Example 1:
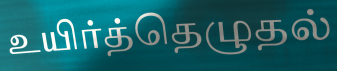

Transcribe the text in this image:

உயிர்த்தெழுதல்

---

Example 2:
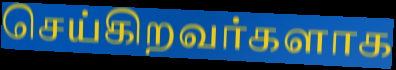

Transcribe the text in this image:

செய்கிறவர்களாக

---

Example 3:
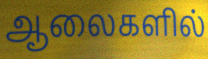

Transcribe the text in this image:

ஆலைகளில்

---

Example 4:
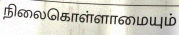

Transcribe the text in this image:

நிலைகொள்ளாமையும்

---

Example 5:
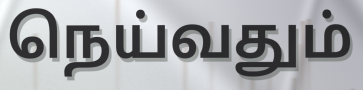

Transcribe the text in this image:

நெய்வதும்